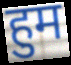
हुम